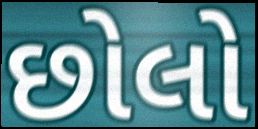
છોલો